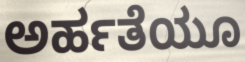
ಅರ್ಹತೆಯೂ